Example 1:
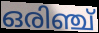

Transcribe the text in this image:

ഒരിഞ്ച്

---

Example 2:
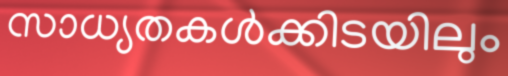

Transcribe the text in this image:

സാധ്യതകൾക്കിടയിലും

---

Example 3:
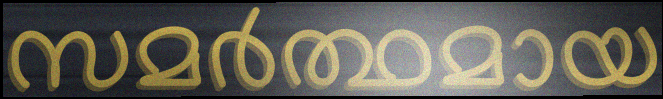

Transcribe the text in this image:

സമർത്ഥമായ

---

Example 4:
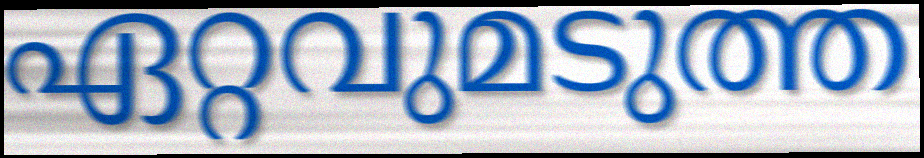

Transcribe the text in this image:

ഏറ്റവുമടുത്ത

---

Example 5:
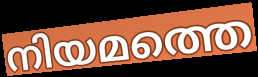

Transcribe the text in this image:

നിയമത്തെ